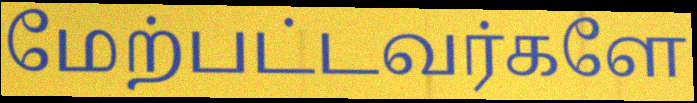
மேற்பட்டவர்களே